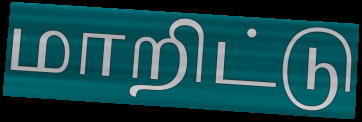
மாறிட்டு